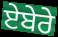
ਏਬੇਰੇ